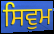
ਸਿਵੁਮ